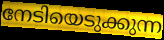
നേടിയെടുക്കുന്ന